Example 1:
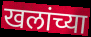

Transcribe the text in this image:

खलांच्या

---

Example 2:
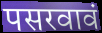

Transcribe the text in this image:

पसरवावं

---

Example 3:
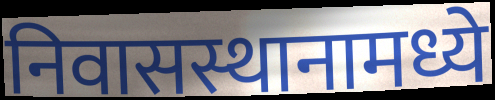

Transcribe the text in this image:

निवासस्थानामध्ये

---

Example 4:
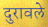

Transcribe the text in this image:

दुरावले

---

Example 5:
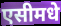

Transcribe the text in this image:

एसीमधे